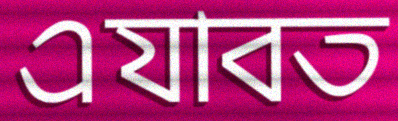
এযাবত